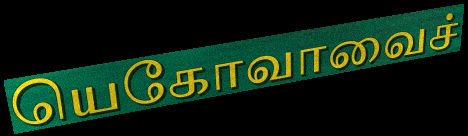
யெகோவாவைச்